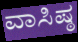
ವಾಸಿಷ್ಠ